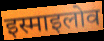
इस्माइलोव